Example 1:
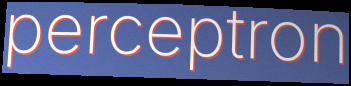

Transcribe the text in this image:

perceptron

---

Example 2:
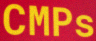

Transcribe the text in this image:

CMPs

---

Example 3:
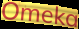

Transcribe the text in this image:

Omeka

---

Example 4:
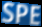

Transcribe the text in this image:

SPE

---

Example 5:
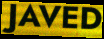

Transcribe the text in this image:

JAVED